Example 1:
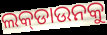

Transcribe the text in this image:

ଲକ୍‌ଡାଉନକୁ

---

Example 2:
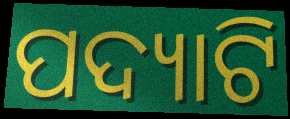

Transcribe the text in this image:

ପଦ୍ୟାଟି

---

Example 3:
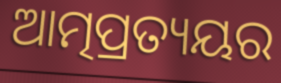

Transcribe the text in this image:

ଆତ୍ମପ୍ରତ୍ୟୟର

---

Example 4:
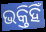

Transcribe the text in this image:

ଭକ୍ତିହିଁ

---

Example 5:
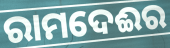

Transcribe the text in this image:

ରାମଦେଈର